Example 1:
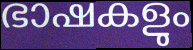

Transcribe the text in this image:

ഭാഷകളും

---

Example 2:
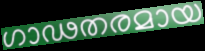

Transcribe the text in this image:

ഗാഢതരമായ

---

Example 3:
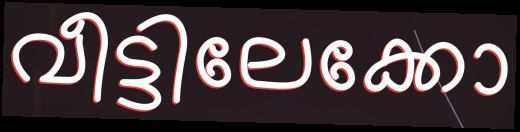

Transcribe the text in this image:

വീട്ടിലേക്കോ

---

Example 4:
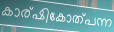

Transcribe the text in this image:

കാര്ഷികോത്പന്ന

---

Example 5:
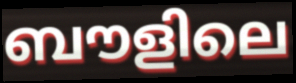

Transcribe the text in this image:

ബൗളിലെ